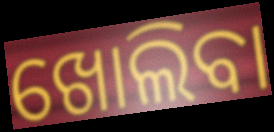
ଖୋଲିବା